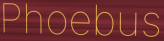
Phoebus